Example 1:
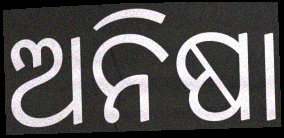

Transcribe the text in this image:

ଅନିଷା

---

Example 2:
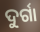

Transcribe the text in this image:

ଦୁର୍ଗା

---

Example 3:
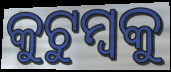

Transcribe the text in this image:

କୁଟୁମ୍ବକୁ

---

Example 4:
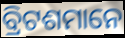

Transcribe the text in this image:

ବ୍ରିଟଶମାନେ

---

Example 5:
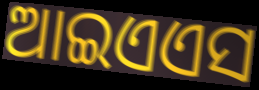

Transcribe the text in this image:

ଆଇଏଏସ